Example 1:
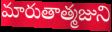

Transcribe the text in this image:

మారుతాత్మజుని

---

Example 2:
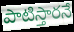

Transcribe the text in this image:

పాటిస్తారనే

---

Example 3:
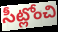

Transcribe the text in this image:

సీట్లోంచి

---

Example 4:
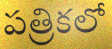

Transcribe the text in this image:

పత్రికలో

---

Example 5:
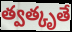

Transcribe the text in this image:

త్వత్కృతే